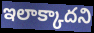
ఇలాక్కాదని